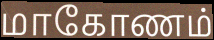
மாகோணம்